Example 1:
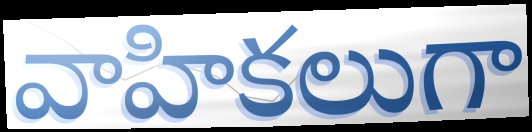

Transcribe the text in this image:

వాహికలుగా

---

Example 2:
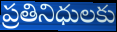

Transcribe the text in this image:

ప్రతినిధులకు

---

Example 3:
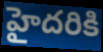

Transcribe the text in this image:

హైదరికి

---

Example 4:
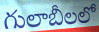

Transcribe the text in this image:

గులాబీలలో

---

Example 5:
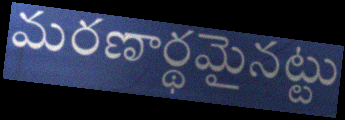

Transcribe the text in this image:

మరణార్థమైనట్టు